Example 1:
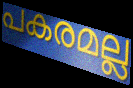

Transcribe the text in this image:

പകരമല്ല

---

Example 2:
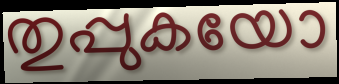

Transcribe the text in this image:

തുപ്പുകയോ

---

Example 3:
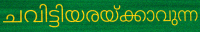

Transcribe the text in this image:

ചവിട്ടിയരയ്ക്കാവുന്ന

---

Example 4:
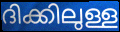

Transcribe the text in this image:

ദിക്കിലുള്ള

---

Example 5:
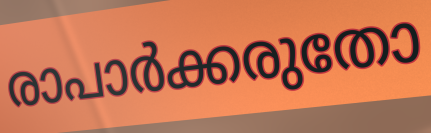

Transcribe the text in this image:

രാപാർക്കരുതോ